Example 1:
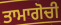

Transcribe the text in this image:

ਤਾਮਾਗੋਚੀ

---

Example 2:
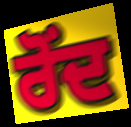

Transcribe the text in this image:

ਰੋਂਦ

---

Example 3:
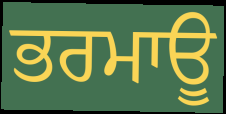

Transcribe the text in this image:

ਭਰਮਾਊ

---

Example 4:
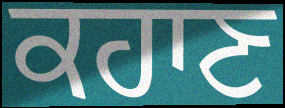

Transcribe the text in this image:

ਕਹਾਣ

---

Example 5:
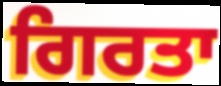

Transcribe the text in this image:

ਗਿਰਤਾ